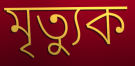
মৃত্যুক